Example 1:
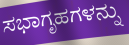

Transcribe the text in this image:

ಸಭಾಗೃಹಗಳನ್ನು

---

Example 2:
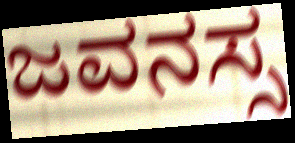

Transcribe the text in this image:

ಜವನಸ್ಸ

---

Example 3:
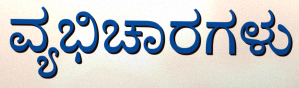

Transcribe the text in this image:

ವ್ಯಭಿಚಾರಗಳು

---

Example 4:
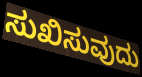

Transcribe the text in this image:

ಸುಖಿಸುವುದು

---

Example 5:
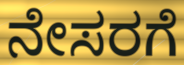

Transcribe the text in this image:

ನೇಸರಗೆ